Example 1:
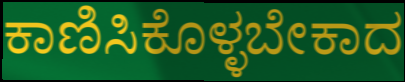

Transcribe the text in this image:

ಕಾಣಿಸಿಕೊಳ್ಳಬೇಕಾದ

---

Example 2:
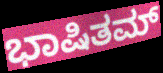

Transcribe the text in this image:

ಭಾಷಿತಮ್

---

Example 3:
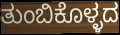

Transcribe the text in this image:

ತುಂಬಿಕೊಳ್ಳದ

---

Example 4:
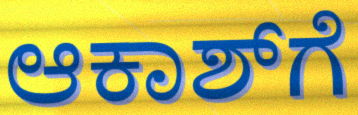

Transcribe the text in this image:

ಆಕಾಶ್‌ಗೆ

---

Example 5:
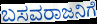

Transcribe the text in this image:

ಬಸವರಾಜನಿಗೆ